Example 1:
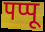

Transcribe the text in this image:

पप्पू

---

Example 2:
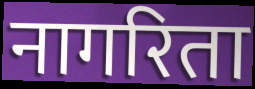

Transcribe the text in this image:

नागरिता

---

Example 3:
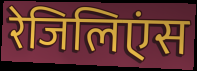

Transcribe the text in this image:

रेजिलिएंस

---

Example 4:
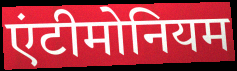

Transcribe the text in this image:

एंटीमोनियम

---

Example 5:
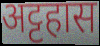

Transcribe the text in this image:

अट्टहास